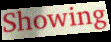
Showing